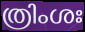
ത്രിംശഃ